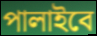
পালাইবে